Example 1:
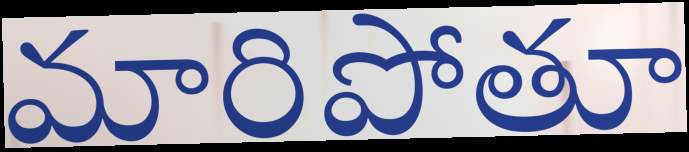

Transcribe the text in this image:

మారిపోతూ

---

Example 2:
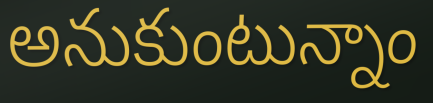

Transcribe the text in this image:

అనుకుంటున్నాం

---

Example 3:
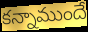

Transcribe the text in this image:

కన్నాముందే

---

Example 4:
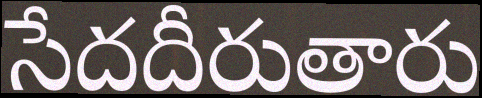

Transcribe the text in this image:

సేదదీరుతారు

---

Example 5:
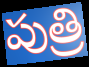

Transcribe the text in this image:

పుత్రి